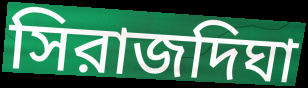
সিরাজদিঘা